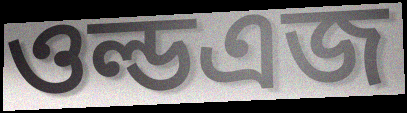
ওল্ডএজ